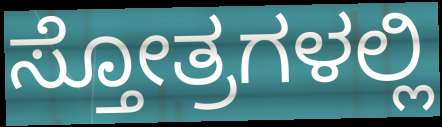
ಸ್ತೋತ್ರಗಳಲ್ಲಿ